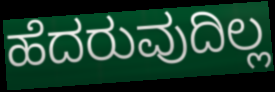
ಹೆದರುವುದಿಲ್ಲ